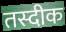
तस्‍दीक